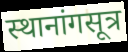
स्थानांगसूत्र